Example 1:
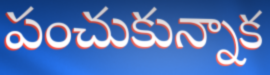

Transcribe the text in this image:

పంచుకున్నాక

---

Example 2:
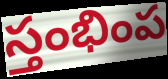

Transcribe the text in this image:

స్తంభింప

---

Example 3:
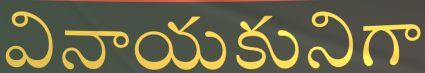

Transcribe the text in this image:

వినాయకునిగా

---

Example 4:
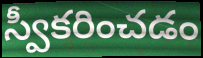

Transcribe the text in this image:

స్వీకరించడం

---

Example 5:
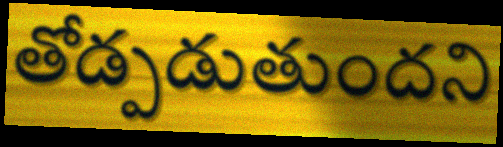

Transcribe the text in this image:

తోడ్పడుతుందని